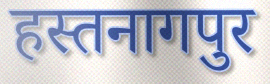
हस्तनागपुर